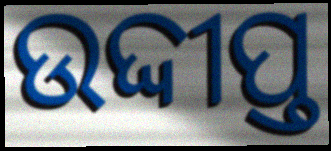
ଉଦ୍ଦୀପ୍ତ